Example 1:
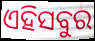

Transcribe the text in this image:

ଏହିସବୁର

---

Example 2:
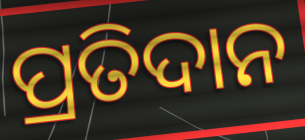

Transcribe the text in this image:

ପ୍ରତିଦାନ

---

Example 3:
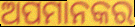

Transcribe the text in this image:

ଅପମାନକର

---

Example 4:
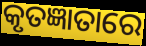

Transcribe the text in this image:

କୃତଜ୍ଞାତାରେ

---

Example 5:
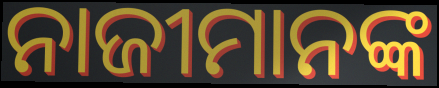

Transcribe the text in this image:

ନାଜୀମାନଙ୍କ